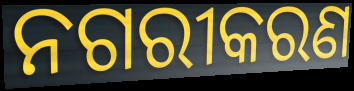
ନଗରୀକରଣ